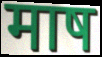
माष